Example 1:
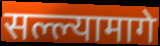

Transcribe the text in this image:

सल्ल्यामागे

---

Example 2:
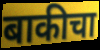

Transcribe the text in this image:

बाकीचा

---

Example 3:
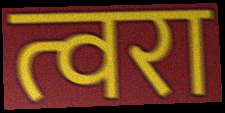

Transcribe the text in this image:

त्वरा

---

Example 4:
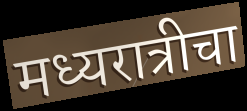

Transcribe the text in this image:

मध्यरात्रीचा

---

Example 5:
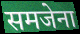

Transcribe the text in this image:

समजेना